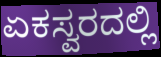
ಏಕಸ್ವರದಲ್ಲಿ